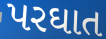
પરઘાત